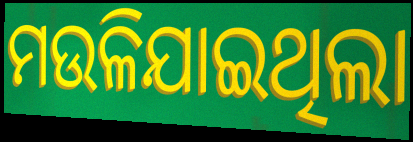
ମଉଳିଯାଇଥିଲା